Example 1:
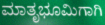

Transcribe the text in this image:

ಮಾತೃಭೂಮಿಗಾಗಿ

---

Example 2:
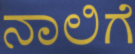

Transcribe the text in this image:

ನಾಲಿಗೆ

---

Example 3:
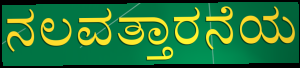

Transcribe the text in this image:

ನಲವತ್ತಾರನೆಯ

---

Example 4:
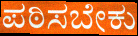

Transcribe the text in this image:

ಪಠಿಸಬೇಕು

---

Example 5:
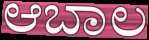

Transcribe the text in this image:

ಆಬಾಲ